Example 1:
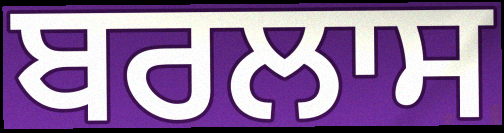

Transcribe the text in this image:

ਬਰਲਾਸ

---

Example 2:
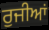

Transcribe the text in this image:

ਰੁਜੀਆਂ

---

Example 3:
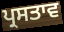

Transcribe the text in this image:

ਪ੍ਰਸਤਾਵ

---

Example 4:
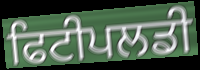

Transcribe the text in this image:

ਫਿਟੀਪਲਡੀ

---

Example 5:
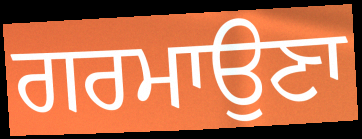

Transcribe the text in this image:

ਗਰਮਾਉਣਾ